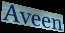
Aveen